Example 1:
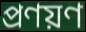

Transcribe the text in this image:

প্ৰণয়ণ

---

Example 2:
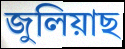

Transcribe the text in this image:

জুলিয়াছ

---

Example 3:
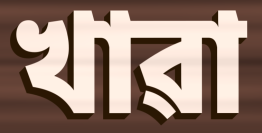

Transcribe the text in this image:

খাৱা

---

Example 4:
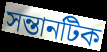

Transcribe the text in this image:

সন্তানটিক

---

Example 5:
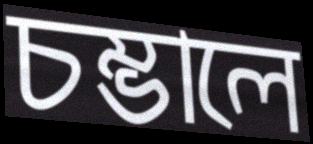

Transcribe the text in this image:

চম্ভালে